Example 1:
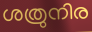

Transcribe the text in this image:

ശത്രുനിര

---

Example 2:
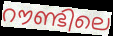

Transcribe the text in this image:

റൗണ്ടിലെ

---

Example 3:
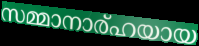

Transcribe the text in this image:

സമ്മാനാര്ഹയായ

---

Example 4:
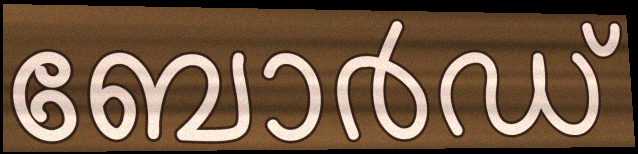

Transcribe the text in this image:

ബോർഡ്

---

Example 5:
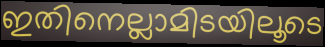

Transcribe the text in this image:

ഇതിനെല്ലാമിടയിലൂടെ